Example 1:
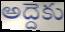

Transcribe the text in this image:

అద్దెకు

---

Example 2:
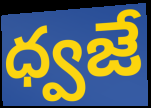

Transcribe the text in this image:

ధ్వజే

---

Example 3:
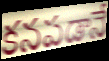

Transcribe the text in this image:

కనపడానే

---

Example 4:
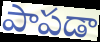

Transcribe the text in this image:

పాపడా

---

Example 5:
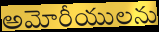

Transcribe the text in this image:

అమోరీయులను